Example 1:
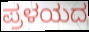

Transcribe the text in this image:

ಪ್ರಳಯದ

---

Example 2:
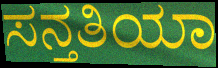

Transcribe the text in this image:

ಸನ್ತತಿಯಾ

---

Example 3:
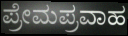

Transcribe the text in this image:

ಪ್ರೇಮಪ್ರವಾಹ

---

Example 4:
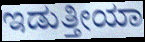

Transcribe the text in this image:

ಇಡುತ್ತೀಯಾ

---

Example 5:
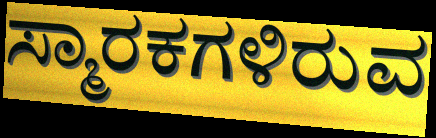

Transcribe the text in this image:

ಸ್ಮಾರಕಗಳಿರುವ